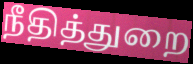
நீதித்துறை